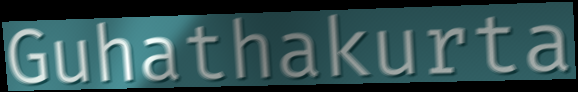
Guhathakurta